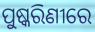
ପୁଷ୍କରିଣୀରେ